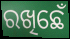
ରଖିଛେଁ